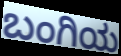
ಬಂಗಿಯ